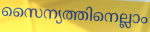
സൈന്യത്തിനെല്ലാം